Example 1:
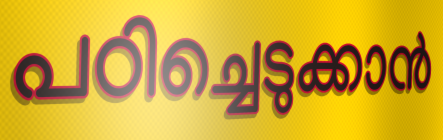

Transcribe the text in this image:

പഠിച്ചെടുക്കാൻ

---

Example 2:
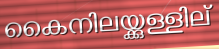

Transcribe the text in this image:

കൈനിലയ്ക്കുള്ളില്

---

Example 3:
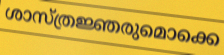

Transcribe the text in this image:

ശാസ്ത്രജ്ഞരുമൊക്കെ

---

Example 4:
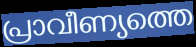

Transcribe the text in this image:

പ്രാവീണ്യത്തെ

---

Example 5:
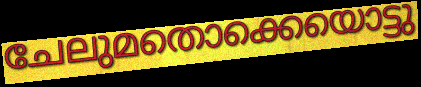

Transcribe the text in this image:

ചേലുമതൊക്കെയൊട്ടു